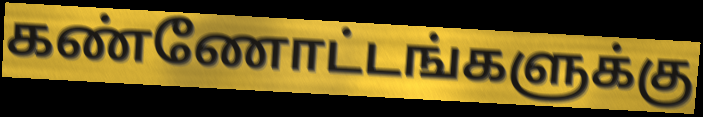
கண்ணோட்டங்களுக்கு